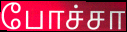
போச்சா